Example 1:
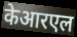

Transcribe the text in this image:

केआरएल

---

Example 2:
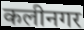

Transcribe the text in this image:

कलीनगर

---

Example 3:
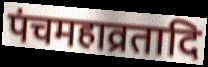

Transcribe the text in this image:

पंचमहाव्रतादि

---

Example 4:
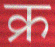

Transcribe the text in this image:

क्र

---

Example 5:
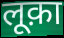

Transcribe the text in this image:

लूक़ा